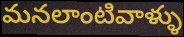
మనలాంటివాళ్ళు